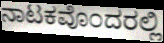
ನಾಟಕವೊಂದರಲ್ಲಿ